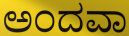
ಅಂದವಾ